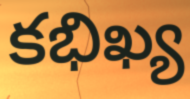
కభిఖ్య